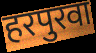
हरपुरवा